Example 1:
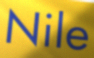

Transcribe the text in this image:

Nile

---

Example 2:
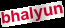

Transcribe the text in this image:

bhalyun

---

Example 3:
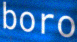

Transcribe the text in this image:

boro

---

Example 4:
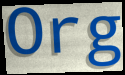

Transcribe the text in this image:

Org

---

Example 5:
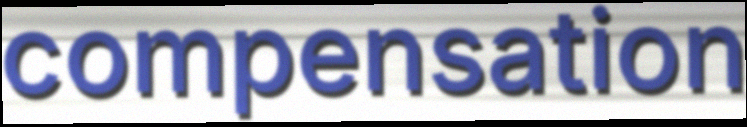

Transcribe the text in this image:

compensation